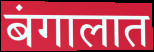
बंगालात